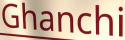
Ghanchi